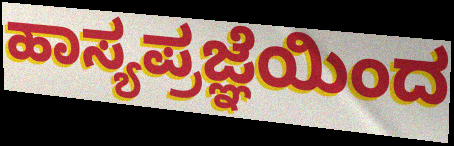
ಹಾಸ್ಯಪ್ರಜ್ಞೆಯಿಂದ